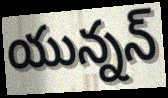
యున్నన్